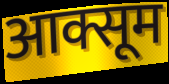
आक्सूम